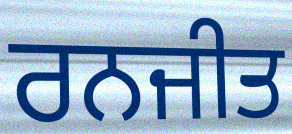
ਰਨਜੀਤ